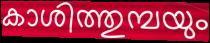
കാശിത്തുമ്പയും